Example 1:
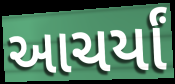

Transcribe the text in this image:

આચર્યાં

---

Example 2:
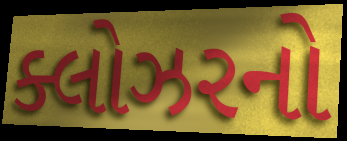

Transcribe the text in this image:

ક્લોઝરનો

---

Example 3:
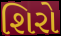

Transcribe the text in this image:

શિરો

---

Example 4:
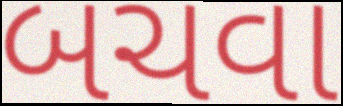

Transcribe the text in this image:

બચવા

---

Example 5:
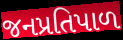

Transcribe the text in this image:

જનપ્રતિપાળ